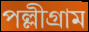
পল্লীগ্রাম